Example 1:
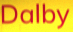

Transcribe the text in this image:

Dalby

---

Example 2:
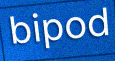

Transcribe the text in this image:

bipod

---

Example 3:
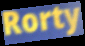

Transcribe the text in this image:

Rorty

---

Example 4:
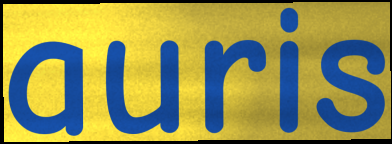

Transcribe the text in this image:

auris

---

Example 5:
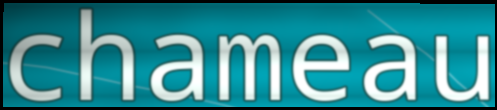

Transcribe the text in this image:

chameau